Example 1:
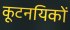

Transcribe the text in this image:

कूटनयिकों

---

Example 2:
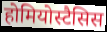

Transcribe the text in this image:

होमियोस्टैसिस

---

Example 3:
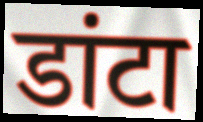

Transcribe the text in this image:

डांटा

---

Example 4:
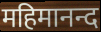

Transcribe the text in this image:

महिमानन्द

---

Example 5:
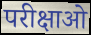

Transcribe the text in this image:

परीक्षाओ